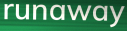
runaway